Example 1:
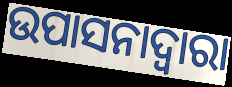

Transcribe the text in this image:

ଉପାସନାଦ୍ଵାରା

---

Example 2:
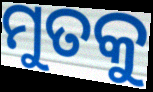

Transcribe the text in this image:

ମୁତକୁ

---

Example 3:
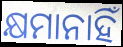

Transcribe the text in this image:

କ୍ଷମାନାହିଁ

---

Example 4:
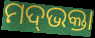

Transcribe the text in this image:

ମଦ୍‌ଭକ୍ତା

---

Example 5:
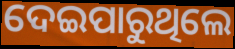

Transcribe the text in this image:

ଦେଇପାରୁଥିଲେ